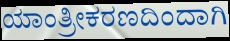
ಯಾಂತ್ರೀಕರಣದಿಂದಾಗಿ